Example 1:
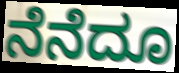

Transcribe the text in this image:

ನೆನೆದೂ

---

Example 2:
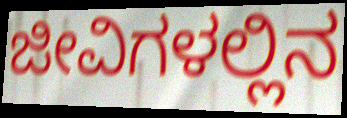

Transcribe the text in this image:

ಜೀವಿಗಳಲ್ಲಿನ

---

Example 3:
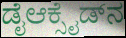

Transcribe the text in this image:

ಡೈಆಕ್ಸೈಡ್‌ನ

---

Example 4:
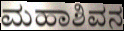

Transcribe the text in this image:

ಮಹಾಶಿವನ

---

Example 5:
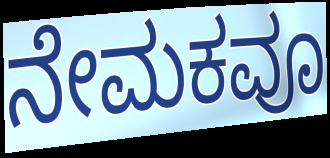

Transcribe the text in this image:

ನೇಮಕವೂ